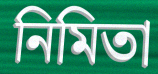
নিমিতা